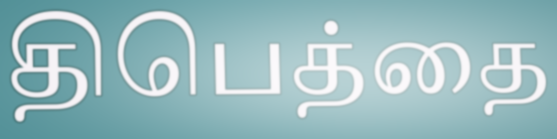
திபெத்தை